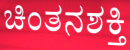
ಚಿಂತನಶಕ್ತಿ